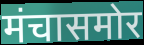
मंचासमोर